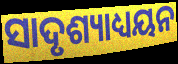
ସାଦୃଶ୍ୟାଧ୍ୟୟନ